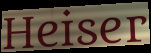
Heiser